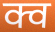
क्व